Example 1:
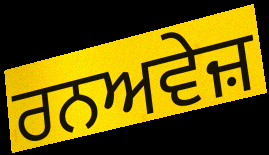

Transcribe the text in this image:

ਰਨਅਵੇਜ਼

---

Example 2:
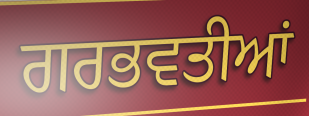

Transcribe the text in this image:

ਗਰਭਵਤੀਆਂ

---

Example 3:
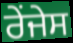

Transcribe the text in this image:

ਰੇਂਜੇਸ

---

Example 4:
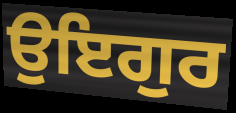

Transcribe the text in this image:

ਉਇਗੁਰ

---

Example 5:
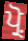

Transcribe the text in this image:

ਪ੍ਰ਼ੋ